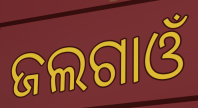
ଜଲଗାଓଁ